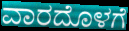
ವಾರದೊಳಗೆ